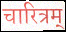
चारित्रम्